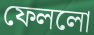
ফেললো